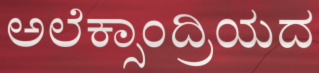
ಅಲೆಕ್ಸಾಂದ್ರಿಯದ